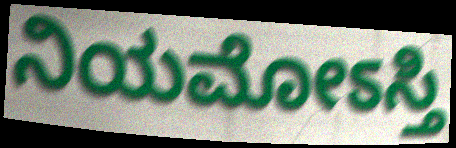
ನಿಯಮೋಽಸ್ತಿ